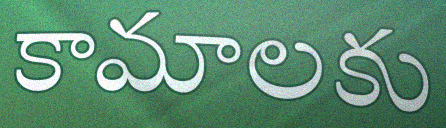
కామాలకు